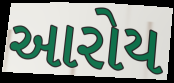
આરોય